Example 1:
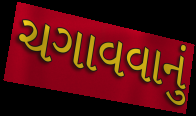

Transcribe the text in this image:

ચગાવવાનું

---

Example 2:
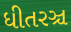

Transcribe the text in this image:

ધીતરઞ્ચ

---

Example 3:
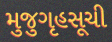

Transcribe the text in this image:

મુજુગૃહસૂચી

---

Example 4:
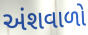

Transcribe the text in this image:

અંશવાળો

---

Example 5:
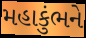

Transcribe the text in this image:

મહાકુંભને